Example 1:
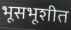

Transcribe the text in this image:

भूसभूशीत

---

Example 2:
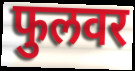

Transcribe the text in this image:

फुलवर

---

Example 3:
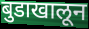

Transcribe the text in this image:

बुडाखालून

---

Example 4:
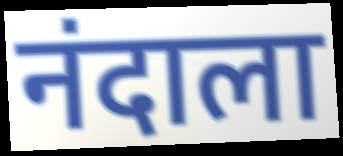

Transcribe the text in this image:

नंदाला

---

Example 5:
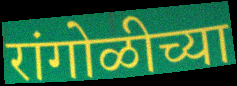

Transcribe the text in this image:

रांगोळीच्या